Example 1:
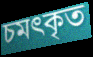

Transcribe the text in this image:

চমৎকৃত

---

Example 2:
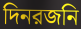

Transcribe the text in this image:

দিনরজনি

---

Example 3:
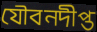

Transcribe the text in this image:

যৌবনদীপ্ত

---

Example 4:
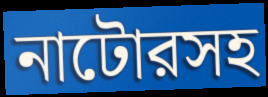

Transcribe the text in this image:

নাটোরসহ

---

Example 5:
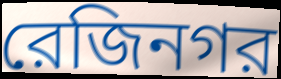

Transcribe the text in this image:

রেজিনগর